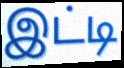
இட்டி